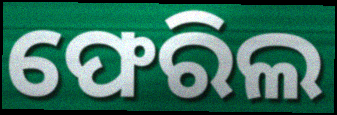
ଫେରିଲ